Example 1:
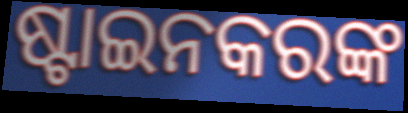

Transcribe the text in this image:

ଷ୍ଟାଇନକରଙ୍କ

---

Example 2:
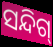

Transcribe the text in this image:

ସନ୍ଦିଗ୍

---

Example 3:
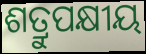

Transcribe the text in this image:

ଶତ୍ରୁପକ୍ଷୀୟ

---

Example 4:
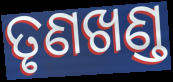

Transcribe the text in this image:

ତୃଣଖଣ୍ଡ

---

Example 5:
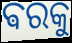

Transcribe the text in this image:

ଵରକୁ